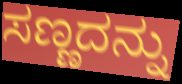
ಸಣ್ಣದನ್ನು